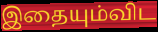
இதையும்விட